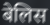
बेलिस